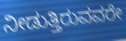
ನೀಡುತ್ತಿರುವವರೇ